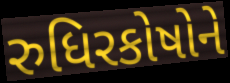
રુધિરકોષોને